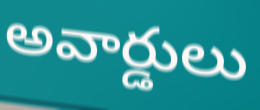
అవార్డులు